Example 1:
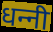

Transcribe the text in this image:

धन्नी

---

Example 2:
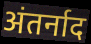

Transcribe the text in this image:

अंतर्नाद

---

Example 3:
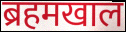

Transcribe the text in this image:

ब्रहमखाल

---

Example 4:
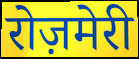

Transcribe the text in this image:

रोज़मेरी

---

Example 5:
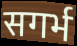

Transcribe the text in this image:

सगर्भ